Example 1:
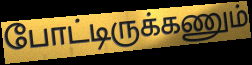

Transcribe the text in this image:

போட்டிருக்கணும்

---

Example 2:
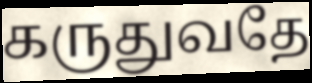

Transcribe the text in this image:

கருதுவதே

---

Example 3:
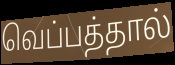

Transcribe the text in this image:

வெப்பத்தால்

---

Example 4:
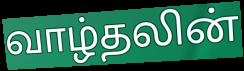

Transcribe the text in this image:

வாழ்தலின்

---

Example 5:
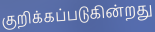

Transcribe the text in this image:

குறிக்கப்படுகின்றது